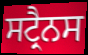
ਸਟ੍ਰੈਨਸ